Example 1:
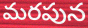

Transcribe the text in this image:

మరపున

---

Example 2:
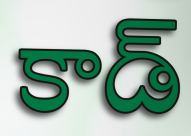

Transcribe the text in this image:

కాడ్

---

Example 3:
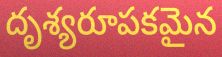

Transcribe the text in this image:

దృశ్యరూపకమైన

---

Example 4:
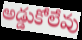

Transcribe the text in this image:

అడ్డుకోలేవు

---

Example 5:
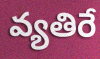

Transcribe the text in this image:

వ్యతిరే